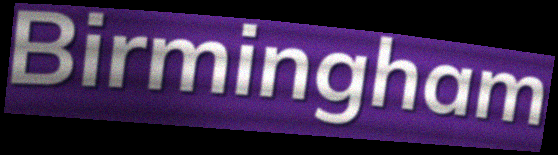
Birmingham